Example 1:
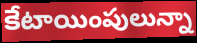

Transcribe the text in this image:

కేటాయింపులున్నా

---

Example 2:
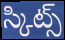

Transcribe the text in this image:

స్కిట్స్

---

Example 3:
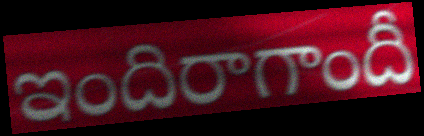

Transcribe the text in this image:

ఇందిరాగాందీ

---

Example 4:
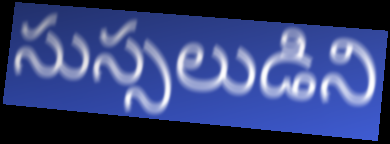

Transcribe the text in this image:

సుస్సలుడిని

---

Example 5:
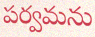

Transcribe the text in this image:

పర్వమను